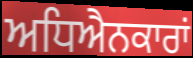
ਅਧਿਐਨਕਾਰਾਂ